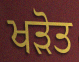
ਖੜੋਤ